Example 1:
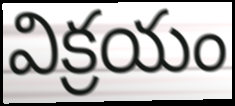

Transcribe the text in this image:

విక్రయం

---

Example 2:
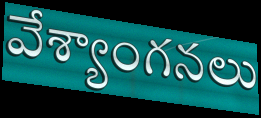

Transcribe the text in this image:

వేశ్యాంగనలు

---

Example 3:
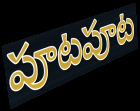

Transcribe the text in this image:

పూటపూట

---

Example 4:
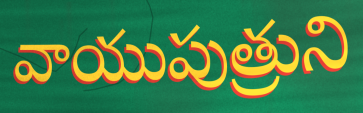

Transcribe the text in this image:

వాయుపుత్రుని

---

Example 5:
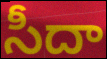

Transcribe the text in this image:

సీదా